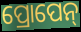
ପ୍ରୋପେନ୍